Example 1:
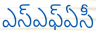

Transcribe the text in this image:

ఎస్ఎఫ్ఏసీ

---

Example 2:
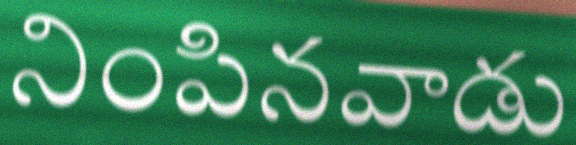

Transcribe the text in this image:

నింపినవాడు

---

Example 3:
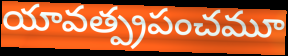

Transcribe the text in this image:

యావత్ప్రపంచమూ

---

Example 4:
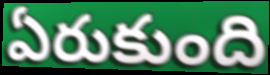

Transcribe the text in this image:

ఏరుకుంది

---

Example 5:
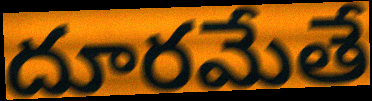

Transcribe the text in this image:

దూరమేతే